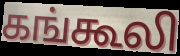
கங்கூலி